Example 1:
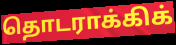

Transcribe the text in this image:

தொடராக்கிக்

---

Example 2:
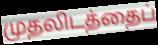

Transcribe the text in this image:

முதலிடத்தைப்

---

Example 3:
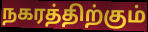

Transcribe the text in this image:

நகரத்திற்கும்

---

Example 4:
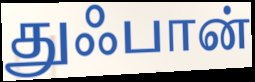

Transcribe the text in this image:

துஃபான்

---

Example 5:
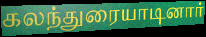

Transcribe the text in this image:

கலந்துரையாடினார்